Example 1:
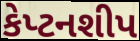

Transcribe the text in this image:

કેપ્ટનશીપ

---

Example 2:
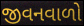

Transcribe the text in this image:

જીવનવાળો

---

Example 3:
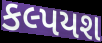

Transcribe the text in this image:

કલ્પયશ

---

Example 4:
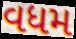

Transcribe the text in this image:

વધમ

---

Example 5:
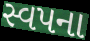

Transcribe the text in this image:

સ્વપના